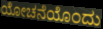
ಯೋಚನೆಯೊಂದು